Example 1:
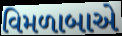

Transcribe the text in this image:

વિમળાબાએ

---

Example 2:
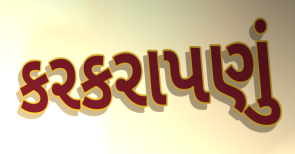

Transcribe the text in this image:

કરકરાપણું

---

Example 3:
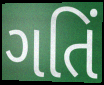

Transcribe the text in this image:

ગતિં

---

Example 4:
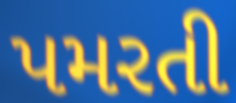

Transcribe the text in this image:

પમરતી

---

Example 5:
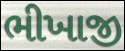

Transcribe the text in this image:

ભીખાજી